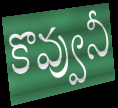
కొవ్వునీ